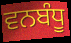
ਵਨਬੰਧੂ